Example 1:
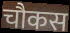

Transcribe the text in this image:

चौकस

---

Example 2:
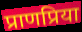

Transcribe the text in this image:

प्राणप्रिया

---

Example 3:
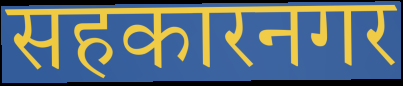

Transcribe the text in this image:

सहकारनगर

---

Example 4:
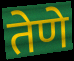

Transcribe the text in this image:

तेणे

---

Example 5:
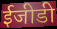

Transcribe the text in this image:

ईजीडी